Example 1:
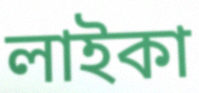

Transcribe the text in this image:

লাইকা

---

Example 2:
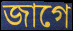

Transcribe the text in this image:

জাগে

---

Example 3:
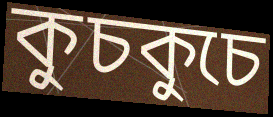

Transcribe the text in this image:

কুচকুচে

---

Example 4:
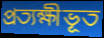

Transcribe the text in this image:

প্রত্যক্ষীভূত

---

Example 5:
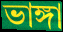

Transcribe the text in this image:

ভাঙ্গা